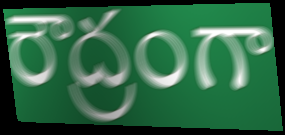
రౌద్రంగా